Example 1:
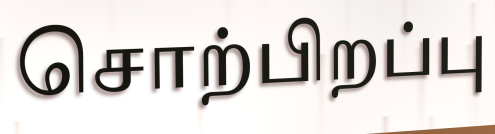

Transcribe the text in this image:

சொற்பிறப்பு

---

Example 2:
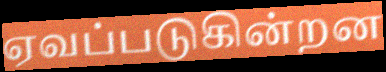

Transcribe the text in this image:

ஏவப்படுகின்றன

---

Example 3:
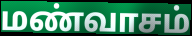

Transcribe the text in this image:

மண்வாசம்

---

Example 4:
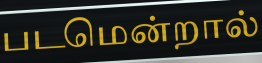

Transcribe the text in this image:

படமென்றால்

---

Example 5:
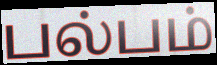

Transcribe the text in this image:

பல்பம்